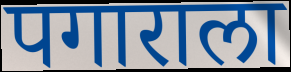
पगाराला